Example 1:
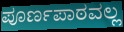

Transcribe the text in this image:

ಪೂರ್ಣಪಾಠವಲ್ಲ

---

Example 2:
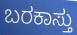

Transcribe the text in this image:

ಬರಕಾಸ್ತು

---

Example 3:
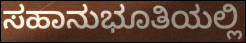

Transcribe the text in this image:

ಸಹಾನುಭೂತಿಯಲ್ಲಿ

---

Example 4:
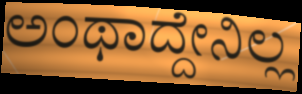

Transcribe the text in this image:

ಅಂಥಾದ್ದೇನಿಲ್ಲ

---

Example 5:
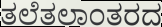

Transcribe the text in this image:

ತಲೆತಲಾಂತರದ